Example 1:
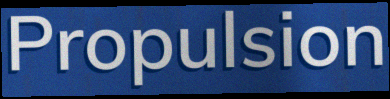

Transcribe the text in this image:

Propulsion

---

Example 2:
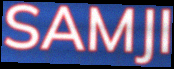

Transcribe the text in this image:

SAMJI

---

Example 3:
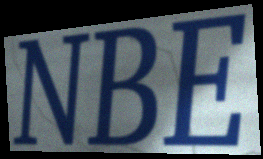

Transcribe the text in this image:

NBE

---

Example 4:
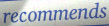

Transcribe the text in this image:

recommends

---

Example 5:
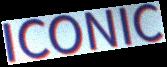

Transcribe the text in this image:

ICONIC